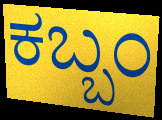
ಕಬ್ಬಂ